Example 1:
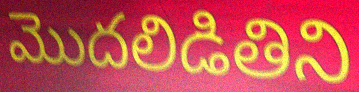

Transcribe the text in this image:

మొదలిడితిని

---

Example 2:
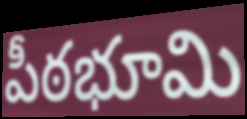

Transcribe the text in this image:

పీఠభూమి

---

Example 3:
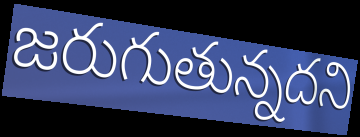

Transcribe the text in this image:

జరుగుతున్నదని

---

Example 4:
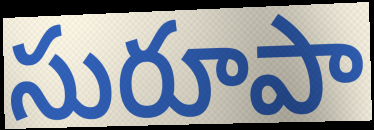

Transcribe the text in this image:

సురూపా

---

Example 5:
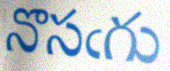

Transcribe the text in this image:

నొసఁగు